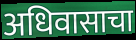
अधिवासाचा